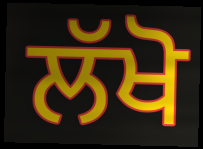
ਲੱਖੋ